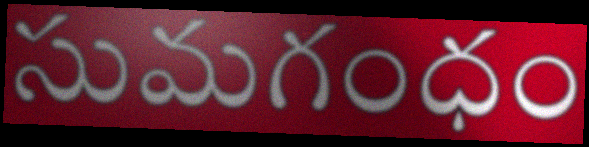
సుమగంధం